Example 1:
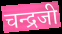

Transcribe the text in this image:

चन्द्रजी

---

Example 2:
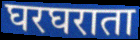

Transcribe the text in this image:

घरघराता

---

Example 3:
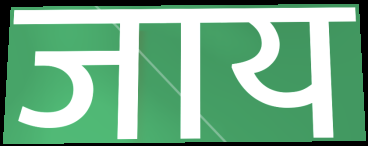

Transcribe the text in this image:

जाय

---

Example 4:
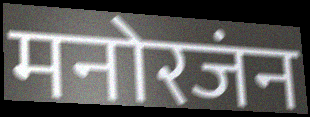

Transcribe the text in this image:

मनोरजंन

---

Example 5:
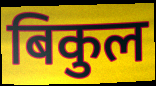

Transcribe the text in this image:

बिकुल